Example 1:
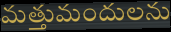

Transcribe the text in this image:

మత్తుమందులను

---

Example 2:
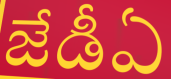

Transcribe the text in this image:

జేడీఏ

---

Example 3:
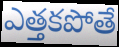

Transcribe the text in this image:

ఎత్తకపోతే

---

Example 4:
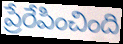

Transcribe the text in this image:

ప్రేరేపించింది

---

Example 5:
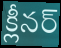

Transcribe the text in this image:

క్లీనర్